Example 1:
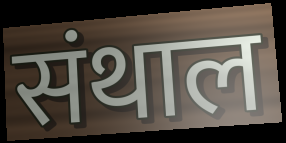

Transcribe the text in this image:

संथाल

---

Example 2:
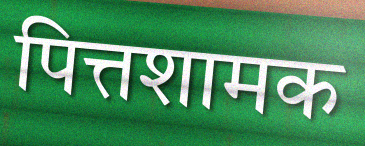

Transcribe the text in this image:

पित्तशामक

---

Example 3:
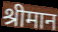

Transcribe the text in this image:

श्रीमान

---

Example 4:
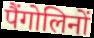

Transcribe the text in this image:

पैंगोलिनों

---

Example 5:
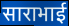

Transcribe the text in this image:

साराभाई